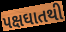
પક્ષઘાતથી